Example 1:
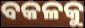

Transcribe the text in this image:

ବକଳକୁ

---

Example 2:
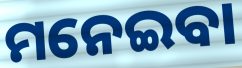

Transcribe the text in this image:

ମନେଇବା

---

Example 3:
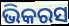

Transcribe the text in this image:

ଭିକରସ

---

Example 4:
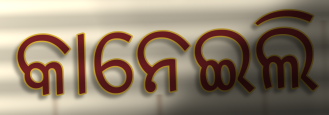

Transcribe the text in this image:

କାନେଇଲି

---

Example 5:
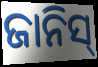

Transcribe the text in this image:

ଜାନିସ୍